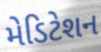
મેડિટેશન